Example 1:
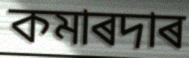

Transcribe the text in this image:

কমাৰদাৰ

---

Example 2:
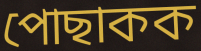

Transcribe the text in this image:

পোছাকক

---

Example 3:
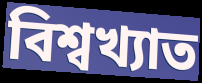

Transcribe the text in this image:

বিশ্বখ্যাত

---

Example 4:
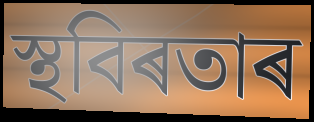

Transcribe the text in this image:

স্থবিৰতাৰ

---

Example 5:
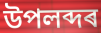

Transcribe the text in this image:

উপলব্দৰ